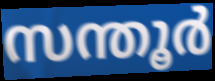
സന്തൂർ